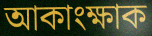
আকাংক্ষাক